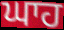
ਘਾਹ